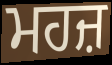
ਮਹਜ਼